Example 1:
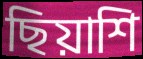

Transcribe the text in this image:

ছিয়াশি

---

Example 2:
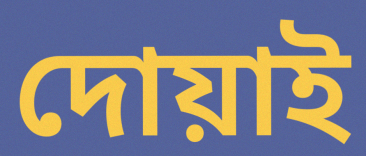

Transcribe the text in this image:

দোয়াই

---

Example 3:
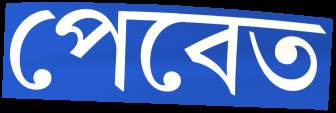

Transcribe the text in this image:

পেবেত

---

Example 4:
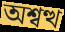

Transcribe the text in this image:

অশ্বত্থ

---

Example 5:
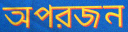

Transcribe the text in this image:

অপরজন